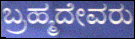
ಬ್ರಹ್ಮದೇವರು